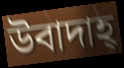
উবাদাহ্